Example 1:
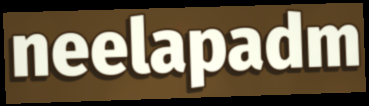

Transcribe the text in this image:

neelapadm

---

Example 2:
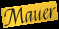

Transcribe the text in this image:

Mauer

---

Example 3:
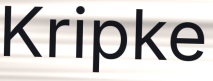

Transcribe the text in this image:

Kripke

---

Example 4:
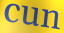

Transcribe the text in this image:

cun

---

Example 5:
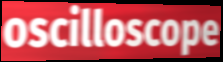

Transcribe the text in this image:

oscilloscope